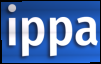
ippa